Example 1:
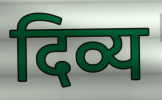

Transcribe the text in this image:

दिव्य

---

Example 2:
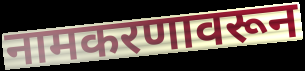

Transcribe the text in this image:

नामकरणावरून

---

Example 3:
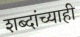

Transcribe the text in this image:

शब्दांच्याही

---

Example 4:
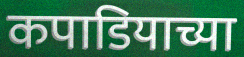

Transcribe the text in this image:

कपाडियाच्या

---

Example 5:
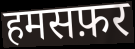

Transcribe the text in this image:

हमसफ़र